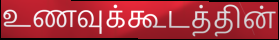
உணவுக்கூடத்தின்